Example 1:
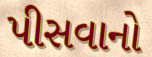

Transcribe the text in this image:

પીસવાનો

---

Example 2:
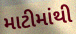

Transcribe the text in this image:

માટીમાંથી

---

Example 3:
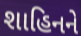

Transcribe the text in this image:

શાહિનને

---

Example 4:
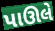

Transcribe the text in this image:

પાઊલે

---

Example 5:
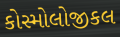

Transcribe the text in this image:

કોસ્મોલોજીકલ